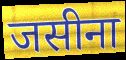
जसीना